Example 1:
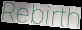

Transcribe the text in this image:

Rebirth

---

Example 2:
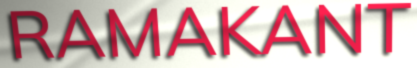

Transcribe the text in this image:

RAMAKANT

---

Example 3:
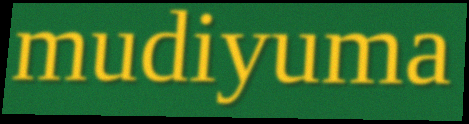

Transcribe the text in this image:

mudiyuma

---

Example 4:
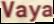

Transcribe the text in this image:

Vaya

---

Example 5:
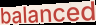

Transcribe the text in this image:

balanced